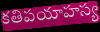
కతిపయాహస్య